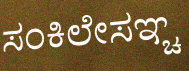
ಸಂಕಿಲೇಸಞ್ಚ